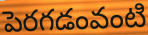
పెరగడంవంటి